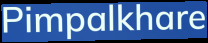
Pimpalkhare